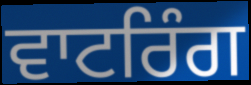
ਵਾਟਰਿੰਗ